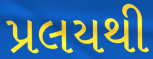
પ્રલયથી